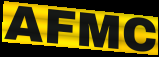
AFMC